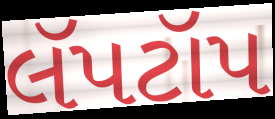
લૅપટૉપ